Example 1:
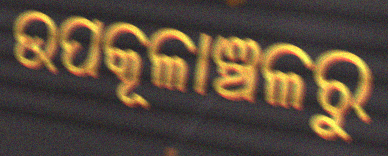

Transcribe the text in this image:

ଉପକୂଳାଞ୍ଚଳରୁ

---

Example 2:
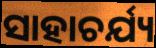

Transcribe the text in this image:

ସାହାଚର୍ଯ୍ୟ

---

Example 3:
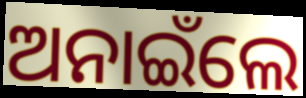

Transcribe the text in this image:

ଅନାଇଁଲେ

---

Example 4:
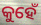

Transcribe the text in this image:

କୁହେଁ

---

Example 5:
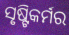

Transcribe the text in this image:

ସୃଷ୍ଟିକର୍ମର